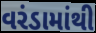
વરંડામાંથી